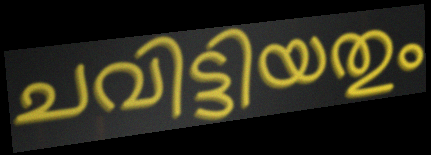
ചവിട്ടിയതും